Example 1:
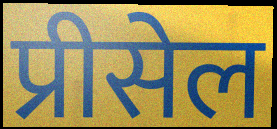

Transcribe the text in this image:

प्रीसेल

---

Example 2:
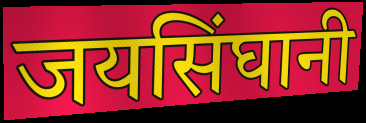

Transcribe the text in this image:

जयसिंघानी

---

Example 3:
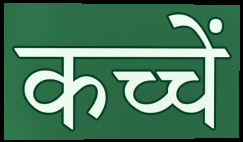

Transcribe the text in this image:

कच्चें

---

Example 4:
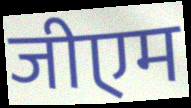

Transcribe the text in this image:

जीएम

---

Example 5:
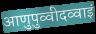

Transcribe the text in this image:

आणुपुव्वीदव्वाइं